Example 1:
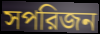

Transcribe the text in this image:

সপরিজন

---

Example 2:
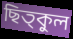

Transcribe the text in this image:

ছিত্কুল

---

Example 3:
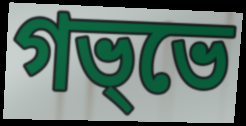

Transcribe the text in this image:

গভ্ভে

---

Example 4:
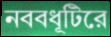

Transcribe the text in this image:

নববধূটিরে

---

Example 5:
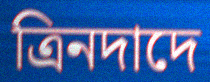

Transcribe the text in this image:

ত্রিনদাদে